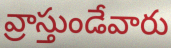
వ్రాస్తుండేవారు